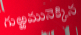
గుఱ్ఱమునెక్కిన